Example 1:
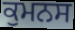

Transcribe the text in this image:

ਕੁਮਨਸ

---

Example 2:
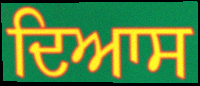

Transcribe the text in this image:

ਦਿਆਸ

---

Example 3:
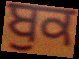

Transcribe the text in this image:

ਬੁਕ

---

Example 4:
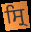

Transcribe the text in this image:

ਸ੍ਰਿ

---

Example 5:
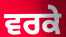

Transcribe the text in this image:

ਵਰਕੇ